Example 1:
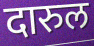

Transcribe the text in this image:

दारुल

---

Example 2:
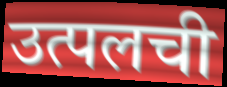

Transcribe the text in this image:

उत्पलची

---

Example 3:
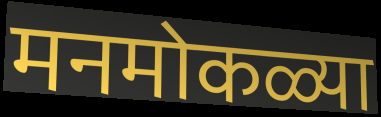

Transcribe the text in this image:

मनमोकळ्या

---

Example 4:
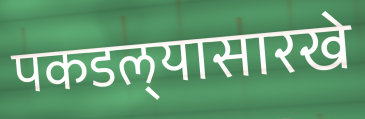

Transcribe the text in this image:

पकडल्यासारखे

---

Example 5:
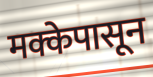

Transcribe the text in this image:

मक्केपासून